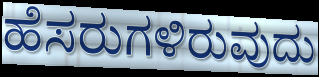
ಹೆಸರುಗಳಿರುವುದು